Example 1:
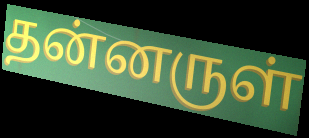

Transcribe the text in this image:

தன்னருள்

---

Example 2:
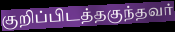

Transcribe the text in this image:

குறிப்பிடத்தகுந்தவர்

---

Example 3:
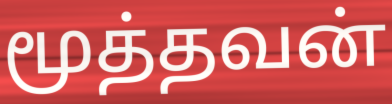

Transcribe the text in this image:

மூத்தவன்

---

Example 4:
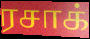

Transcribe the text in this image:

ரசாக்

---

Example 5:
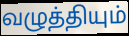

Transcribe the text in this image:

வழுத்தியும்